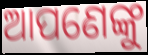
ଆପଣେଙ୍କୁ